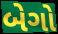
બેગો